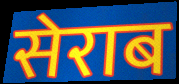
सेराब